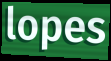
lopes